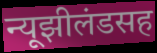
न्यूझीलंडसह